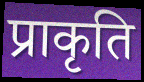
प्राकृति